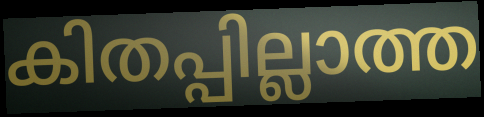
കിതപ്പില്ലാത്ത